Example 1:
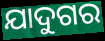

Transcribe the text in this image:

ଯାଦୁଗର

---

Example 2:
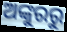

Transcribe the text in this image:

ଅଙ୍କୁରରୁ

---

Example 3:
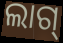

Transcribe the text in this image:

ଲାଗ୍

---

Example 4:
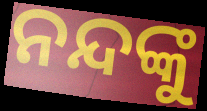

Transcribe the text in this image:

ନନ୍ଦଙ୍କୁ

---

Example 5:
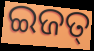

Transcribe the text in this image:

ଇଜତ୍